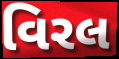
વિરલ